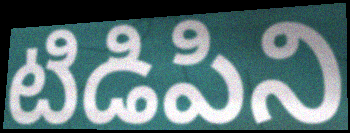
టిడిపిని